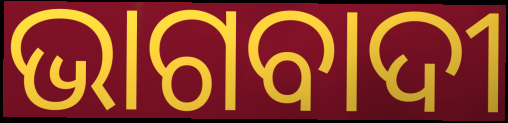
ଭାଗବାଦୀ